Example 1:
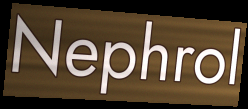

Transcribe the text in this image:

Nephrol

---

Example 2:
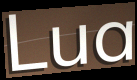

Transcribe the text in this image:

Lua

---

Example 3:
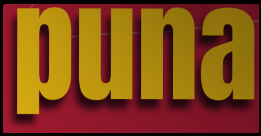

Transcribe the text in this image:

puna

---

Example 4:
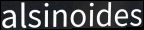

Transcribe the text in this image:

alsinoides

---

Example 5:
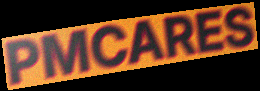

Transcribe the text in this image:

PMCARES